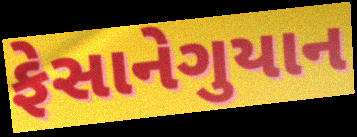
ફેસાનેગુયાન